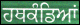
ਹਥਕੰਡਿਆਂ